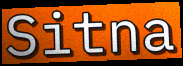
Sitna